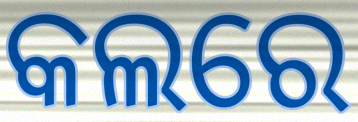
କଲରେ